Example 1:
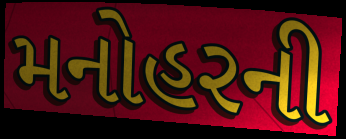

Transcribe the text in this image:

મનોહરની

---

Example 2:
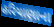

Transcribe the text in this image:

હરિયાણાના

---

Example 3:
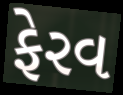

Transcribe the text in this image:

ફેરવ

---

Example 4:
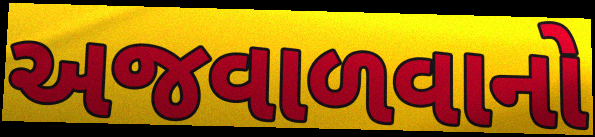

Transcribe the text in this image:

અજવાળવાનો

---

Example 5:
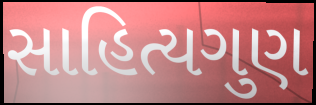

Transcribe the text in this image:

સાહિત્યગુણ